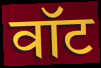
वॉट